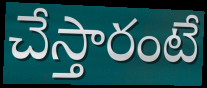
చేస్తారంటే